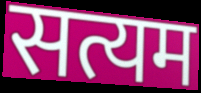
सत्यम